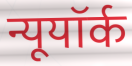
न्यूयॉर्क